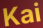
Kai